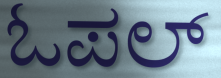
ಓಪಲ್